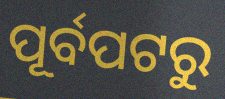
ପୂର୍ବପଟରୁ